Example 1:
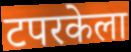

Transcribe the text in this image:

टपरकेला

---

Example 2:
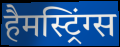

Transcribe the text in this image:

हैमस्ट्रिंग्स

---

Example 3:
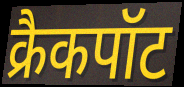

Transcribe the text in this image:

क्रैकपॉट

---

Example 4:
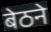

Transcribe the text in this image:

बेठने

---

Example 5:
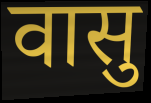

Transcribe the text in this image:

वासु